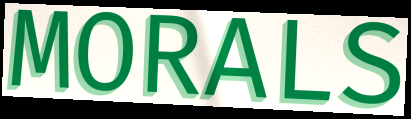
MORALS